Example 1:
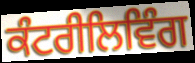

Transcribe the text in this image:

ਕੰਟਰੀਲਿਵਿੰਗ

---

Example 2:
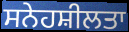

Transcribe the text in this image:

ਸਨੇਹਸ਼ੀਲਤਾ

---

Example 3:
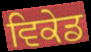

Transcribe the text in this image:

ਵਿਕੇਡ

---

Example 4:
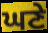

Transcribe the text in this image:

ਘਣੇ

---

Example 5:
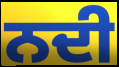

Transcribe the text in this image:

ਨਦੀ